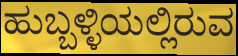
ಹುಬ್ಬಳ್ಳಿಯಲ್ಲಿರುವ